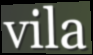
vila